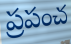
ప్రపంచ